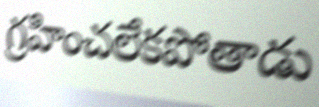
గ్రహించలేకపోతాడు